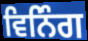
ਵਿਨਿੰਗ